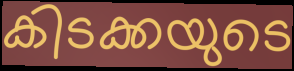
കിടക്കയുടെ